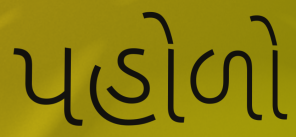
પહોળો